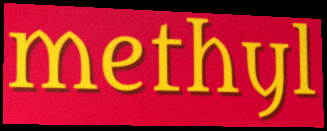
methyl